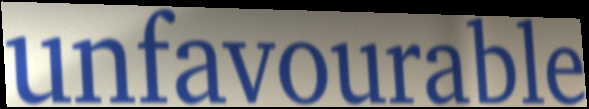
unfavourable